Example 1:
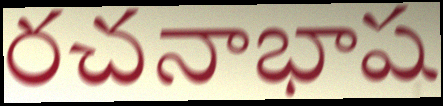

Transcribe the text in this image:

రచనాభాష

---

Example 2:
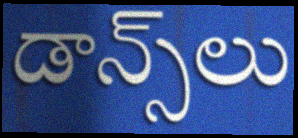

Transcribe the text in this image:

డాన్స్‌లు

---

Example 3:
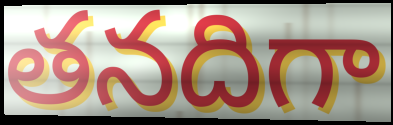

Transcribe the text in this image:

తనదిగా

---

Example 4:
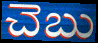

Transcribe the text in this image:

చెబు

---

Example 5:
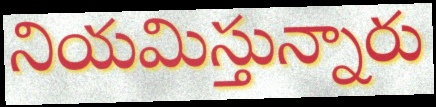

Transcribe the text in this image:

నియమిస్తున్నారు